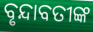
ବୃନ୍ଦାବତୀଙ୍କ